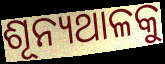
ଶୂନ୍ୟଥାଳକୁ